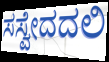
ಸಸ್ವೇದದಲಿ